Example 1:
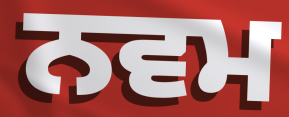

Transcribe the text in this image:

ਨਵਮ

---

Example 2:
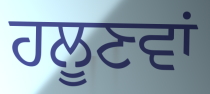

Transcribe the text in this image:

ਹਲੂਣਵਾਂ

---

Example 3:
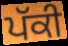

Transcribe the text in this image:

ਪੱਕੀ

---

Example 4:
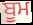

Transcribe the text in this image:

ਬੂਮ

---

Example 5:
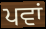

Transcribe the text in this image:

ਪਵਾਂ